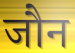
जौन